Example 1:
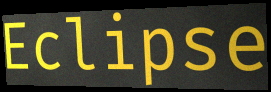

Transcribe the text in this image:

Eclipse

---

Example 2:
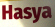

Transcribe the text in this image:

Hasya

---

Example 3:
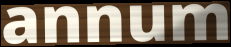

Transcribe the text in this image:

annum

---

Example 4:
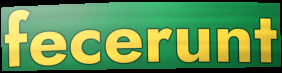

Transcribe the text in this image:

fecerunt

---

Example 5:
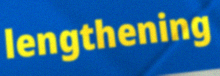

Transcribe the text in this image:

lengthening